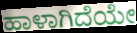
ಹಾಳಾಗಿದೆಯೇ